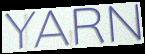
YARN